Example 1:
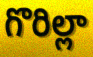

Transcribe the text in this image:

గొరిల్లా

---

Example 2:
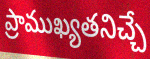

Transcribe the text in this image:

ప్రాముఖ్యతనిచ్చే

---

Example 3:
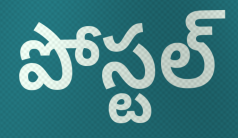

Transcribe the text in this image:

పోస్టల్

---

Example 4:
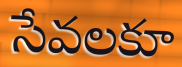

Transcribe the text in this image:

సేవలకూ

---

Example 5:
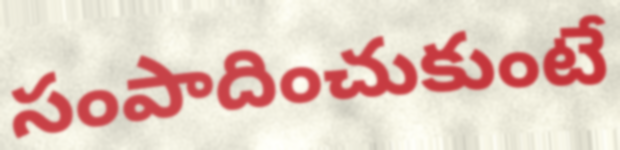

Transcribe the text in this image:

సంపాదించుకుంటే